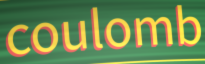
coulomb